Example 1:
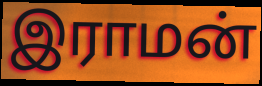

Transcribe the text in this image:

இராமன்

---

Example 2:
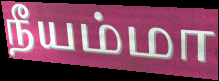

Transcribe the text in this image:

நீயம்மா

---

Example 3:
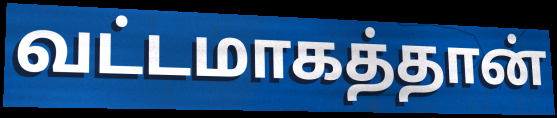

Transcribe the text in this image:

வட்டமாகத்தான்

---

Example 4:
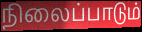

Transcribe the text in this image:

நிலைப்பாடும்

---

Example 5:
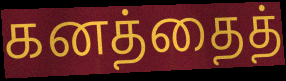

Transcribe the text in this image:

கனத்தைத்